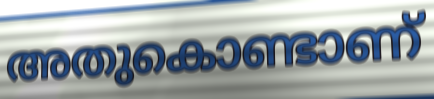
അതുകൊണ്ടാണ്